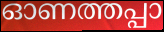
ഓണത്തപ്പാ